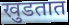
खुडतात